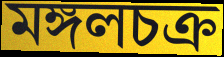
মঙ্গলচক্র